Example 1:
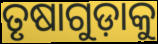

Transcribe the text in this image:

ତୃଷାଗୁଡ଼ାକୁ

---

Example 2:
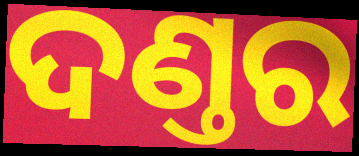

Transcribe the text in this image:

ଦଣ୍ତର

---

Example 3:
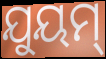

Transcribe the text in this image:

ଯୁୟମ୍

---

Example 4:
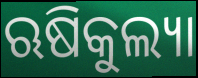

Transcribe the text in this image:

ଋଷିକୁଲ୍ୟା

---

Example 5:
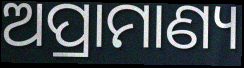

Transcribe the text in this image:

ଅପ୍ରାମାଣ୍ୟ